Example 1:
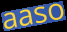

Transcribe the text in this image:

aaso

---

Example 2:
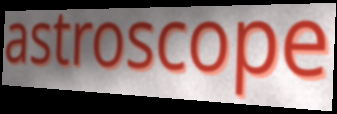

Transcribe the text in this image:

astroscope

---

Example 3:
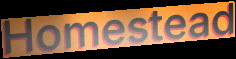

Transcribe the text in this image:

Homestead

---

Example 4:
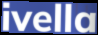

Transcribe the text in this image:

ivella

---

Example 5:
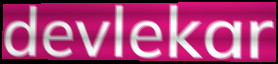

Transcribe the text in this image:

devlekar